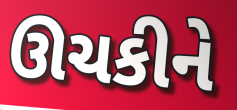
ઊચકીને